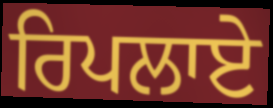
ਰਿਪਲਾਏ